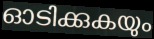
ഓടിക്കുകയും